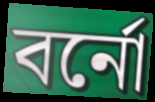
বর্নো